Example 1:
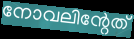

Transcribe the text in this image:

നോവലിന്റേത്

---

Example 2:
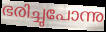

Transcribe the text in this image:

ഭരിച്ചുപോന്നു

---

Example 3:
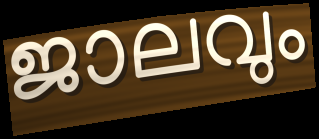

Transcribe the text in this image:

ജാലവും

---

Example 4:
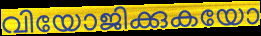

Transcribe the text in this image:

വിയോജിക്കുകയോ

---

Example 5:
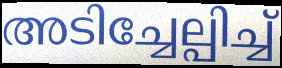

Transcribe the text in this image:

അടിച്ചേല്പിച്ച്